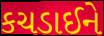
કચડાઈને